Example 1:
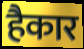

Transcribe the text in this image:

हैकार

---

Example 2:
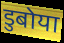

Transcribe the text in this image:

डुबोया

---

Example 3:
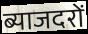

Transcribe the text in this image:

ब्याजदरों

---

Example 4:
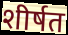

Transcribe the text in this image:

शीर्षत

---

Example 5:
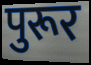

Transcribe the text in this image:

पुरूर